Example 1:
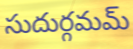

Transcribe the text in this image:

సుదుర్గమమ్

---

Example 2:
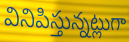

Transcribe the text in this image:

వినిపిస్తున్నట్లుగా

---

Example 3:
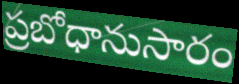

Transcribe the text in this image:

ప్రబోధానుసారం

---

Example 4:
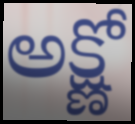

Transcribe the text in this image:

అక్ష్ణో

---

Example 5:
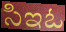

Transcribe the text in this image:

సిఇఓ